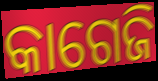
କାଗେଜି